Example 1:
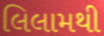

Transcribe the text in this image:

લિલામથી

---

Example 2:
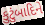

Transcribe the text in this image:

કુટુંબાદિને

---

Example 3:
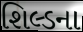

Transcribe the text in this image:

શિલ્ડના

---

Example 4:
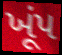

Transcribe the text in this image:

ખૂંપ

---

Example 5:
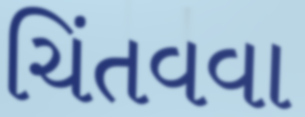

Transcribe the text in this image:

ચિંતવવા